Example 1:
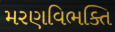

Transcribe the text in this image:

મરણવિભક્તિ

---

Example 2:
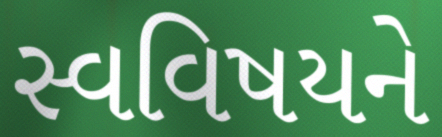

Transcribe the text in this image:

સ્વવિષયને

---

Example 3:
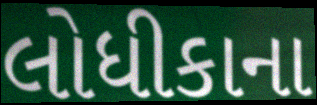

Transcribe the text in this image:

લોધીકાના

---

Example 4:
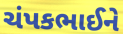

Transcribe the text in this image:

ચંપકભાઈને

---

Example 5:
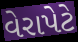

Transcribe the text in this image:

વેરાપેટે